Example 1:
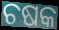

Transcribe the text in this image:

ଚଷକ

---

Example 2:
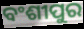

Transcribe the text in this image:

ବଂଶୀପୁର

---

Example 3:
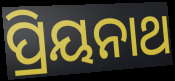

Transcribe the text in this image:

ପ୍ରିୟନାଥ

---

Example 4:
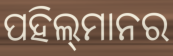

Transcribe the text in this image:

ପହିଲ୍‌ମାନର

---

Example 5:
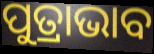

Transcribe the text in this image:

ପୁତ୍ରାଭାବ